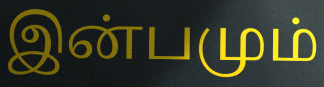
இன்பமும்